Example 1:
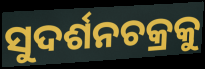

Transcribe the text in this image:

ସୁଦର୍ଶନଚକ୍ରକୁ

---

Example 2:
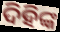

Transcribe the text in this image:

ଦିହିଙ୍କ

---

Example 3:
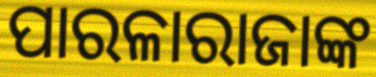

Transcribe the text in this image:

ପାରଳାରାଜାଙ୍କ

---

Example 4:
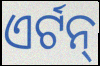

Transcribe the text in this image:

ଏର୍ଟନ୍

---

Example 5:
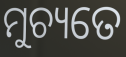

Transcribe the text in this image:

ମୁଚ୍ୟତେ